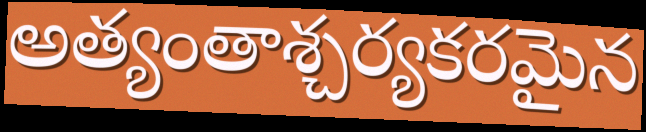
అత్యంతాశ్చర్యకరమైన